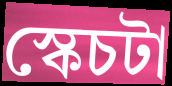
স্কেচটা